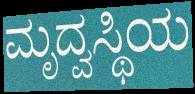
ಮೃದ್ವಸ್ಥಿಯ